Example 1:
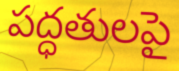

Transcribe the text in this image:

పద్ధతులపై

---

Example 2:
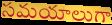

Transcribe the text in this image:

సమయాలుగా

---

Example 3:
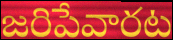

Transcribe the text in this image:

జరిపేవారట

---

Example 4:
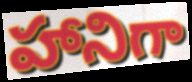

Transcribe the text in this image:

హానిగా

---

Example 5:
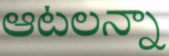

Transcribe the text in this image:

ఆటలన్నా